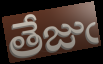
తేజుఁ